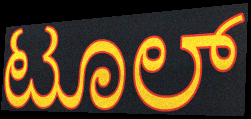
ಟೂಲ್